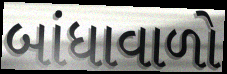
બાંધાવાળો